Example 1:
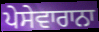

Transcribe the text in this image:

ਪੇਸੇਵਾਰਾਨਾ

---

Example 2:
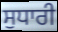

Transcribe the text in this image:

ਸੁਧਾਰੀ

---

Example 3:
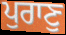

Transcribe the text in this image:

ਪੁਰਾਣੁ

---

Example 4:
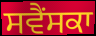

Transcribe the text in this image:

ਸਵੈਂਸਕਾ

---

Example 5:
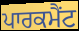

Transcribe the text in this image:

ਪਾਰਕਮੈਂਟ